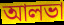
আলভা